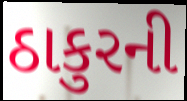
ઠાકુરની